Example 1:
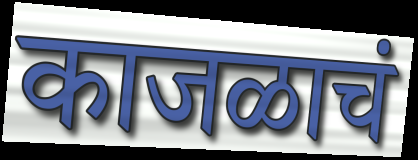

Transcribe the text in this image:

काजळाचं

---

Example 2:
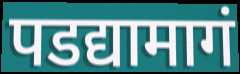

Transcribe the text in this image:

पडद्यामागं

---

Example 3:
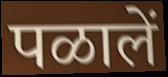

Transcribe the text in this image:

पळालें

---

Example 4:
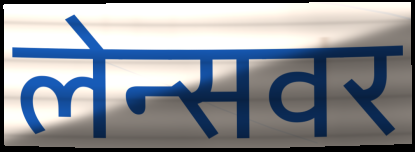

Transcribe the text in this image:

लेन्सवर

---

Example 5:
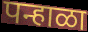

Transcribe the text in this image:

पन्हाळा